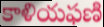
కాళియఫణి